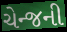
ચેન્જની